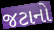
જટાનો